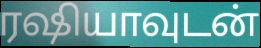
ரஷியாவுடன்